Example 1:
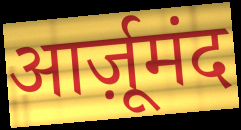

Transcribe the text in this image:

आर्ज़ूमंद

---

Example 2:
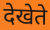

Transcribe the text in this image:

देखेते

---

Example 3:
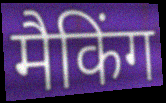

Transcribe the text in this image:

मैकिंग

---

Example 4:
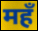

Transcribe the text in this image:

महँ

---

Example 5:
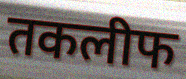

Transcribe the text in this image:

तकलीफ